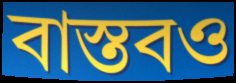
বাস্তবও